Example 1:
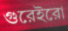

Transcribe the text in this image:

গুরেইরো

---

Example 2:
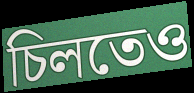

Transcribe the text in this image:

চিলতেও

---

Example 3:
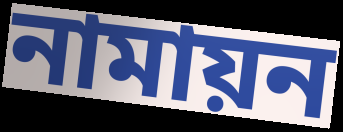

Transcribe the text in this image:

নামায়ন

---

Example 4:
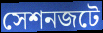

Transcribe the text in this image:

সেশনজটে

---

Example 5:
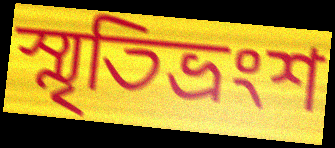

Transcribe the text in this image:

স্মৃতিভ্রংশ